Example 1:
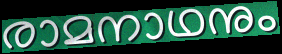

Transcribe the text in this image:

രാമനാഥനും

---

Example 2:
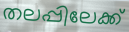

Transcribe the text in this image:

തലപ്പിലേക്ക്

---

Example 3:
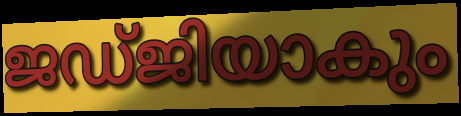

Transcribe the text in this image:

ജഡ്ജിയാകും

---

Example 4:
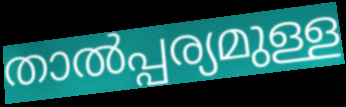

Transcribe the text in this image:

താൽപ്പര്യമുള്ള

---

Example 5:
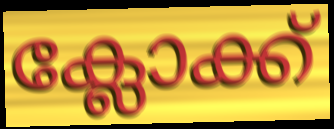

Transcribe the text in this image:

ക്ലോക്ക്